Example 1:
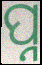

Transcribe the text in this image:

ପ୍ନ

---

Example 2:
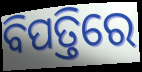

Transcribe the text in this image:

ବିପତ୍ତିରେ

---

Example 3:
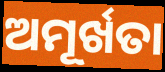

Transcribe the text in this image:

ଅମୂର୍ଖତା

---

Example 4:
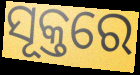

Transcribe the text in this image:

ସୂକ୍ତରେ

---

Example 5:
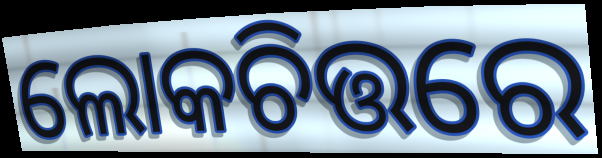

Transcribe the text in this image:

ଲୋକଚିତ୍ତରେ